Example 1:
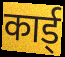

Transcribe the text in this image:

कार्ड्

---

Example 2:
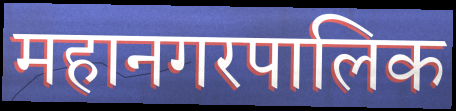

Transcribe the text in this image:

महानगरपालिक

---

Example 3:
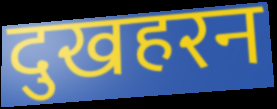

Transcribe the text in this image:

दुखहरन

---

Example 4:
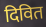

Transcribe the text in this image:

दिवित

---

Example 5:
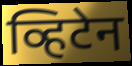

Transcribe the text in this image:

व्हिटेन